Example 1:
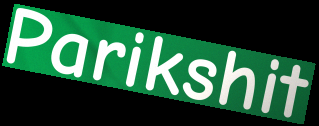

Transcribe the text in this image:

Parikshit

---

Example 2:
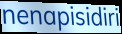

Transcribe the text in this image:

nenapisidiri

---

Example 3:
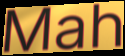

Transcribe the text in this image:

Mah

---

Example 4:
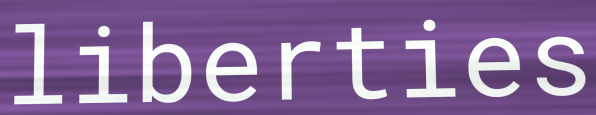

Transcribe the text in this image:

liberties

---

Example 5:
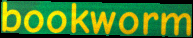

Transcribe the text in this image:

bookworm